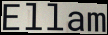
Ellam